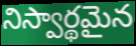
నిస్వార్థమైన